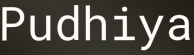
Pudhiya